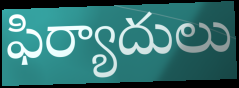
ఫిర్యాదులు